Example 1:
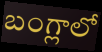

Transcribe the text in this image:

బంగ్లాలో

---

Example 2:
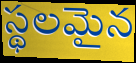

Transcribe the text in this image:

స్థలమైన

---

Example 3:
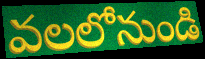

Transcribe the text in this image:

వలలోనుండి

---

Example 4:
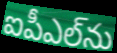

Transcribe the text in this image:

ఐపీఎల్‌ను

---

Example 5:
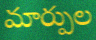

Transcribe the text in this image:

మార్పుల